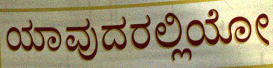
ಯಾವುದರಲ್ಲಿಯೋ